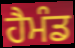
ਹੈਮੰਡ